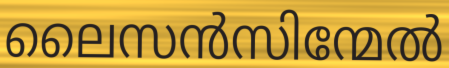
ലൈസൻസിന്മേൽ